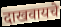
दाखवायचे